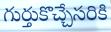
గుర్తుకొచ్చేసరికి